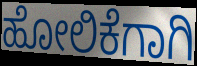
ಹೋಲಿಕೆಗಾಗಿ